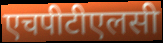
एचपीटीएलसी